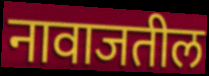
नावाजतील